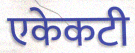
एकेकटी